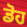
ਡੋਹ